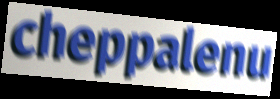
cheppalenu